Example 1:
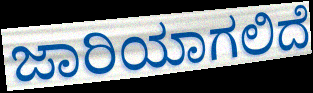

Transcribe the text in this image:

ಜಾರಿಯಾಗಲಿದೆ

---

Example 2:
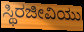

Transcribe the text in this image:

ಸ್ಥಿರಜೀವಿಯು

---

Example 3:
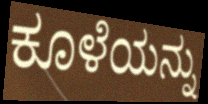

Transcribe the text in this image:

ಕೂಳೆಯನ್ನು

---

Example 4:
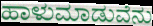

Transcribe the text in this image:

ಹಾಳುಮಾಡುವೆನು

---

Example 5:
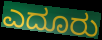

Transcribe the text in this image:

ಎದೂರು